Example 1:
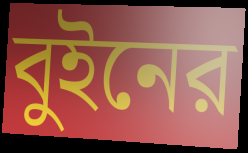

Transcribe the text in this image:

বুইনের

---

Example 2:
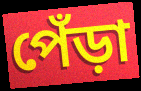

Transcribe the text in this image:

পেঁড়া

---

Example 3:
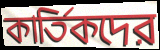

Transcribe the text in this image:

কার্তিকদের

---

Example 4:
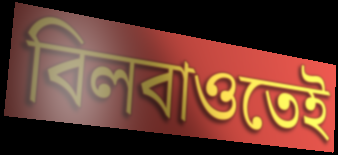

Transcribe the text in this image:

বিলবাওতেই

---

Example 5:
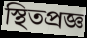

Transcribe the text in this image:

স্থিতপ্রজ্ঞ